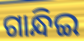
ଗାନ୍ଧିଇ